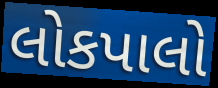
લોકપાલો